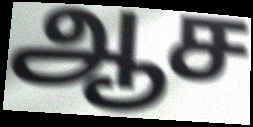
ஆச